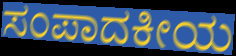
ಸಂಪಾದಕೀಯ